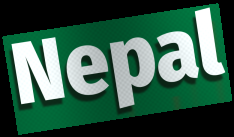
Nepal